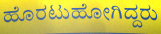
ಹೊರಟುಹೋಗಿದ್ದರು